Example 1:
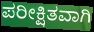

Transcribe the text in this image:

ಪರೀಕ್ಷಿತವಾಗಿ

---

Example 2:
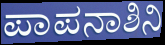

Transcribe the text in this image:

ಪಾಪನಾಶಿನಿ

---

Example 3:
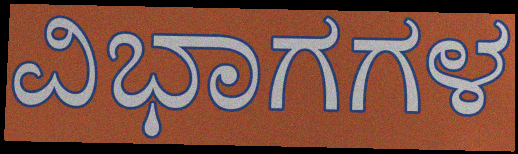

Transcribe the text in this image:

ವಿಭಾಗಗಳ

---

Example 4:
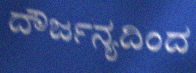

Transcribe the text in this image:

ದೌರ್ಜನ್ಯದಿಂದ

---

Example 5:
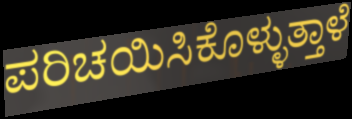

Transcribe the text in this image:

ಪರಿಚಯಿಸಿಕೊಳ್ಳುತ್ತಾಳೆ